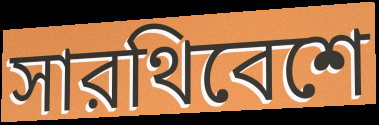
সারথিবেশে